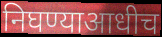
निघण्याआधीच